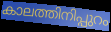
കാലത്തിനിപ്പുറം